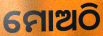
ମୋଅଠି